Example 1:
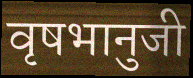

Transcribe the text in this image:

वृषभानुजी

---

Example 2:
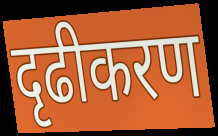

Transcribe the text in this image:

दृढीकरण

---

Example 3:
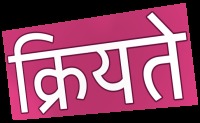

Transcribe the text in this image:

क्रियते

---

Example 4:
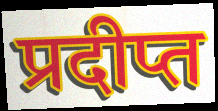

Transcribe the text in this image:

प्रदीप्त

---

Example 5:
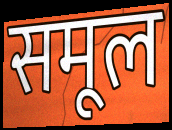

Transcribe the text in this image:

समूल